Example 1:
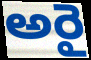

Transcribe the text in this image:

అరై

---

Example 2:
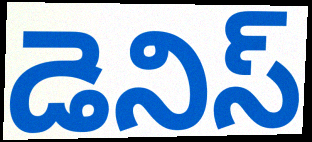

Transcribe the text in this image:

డెనిస్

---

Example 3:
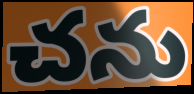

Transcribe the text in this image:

చను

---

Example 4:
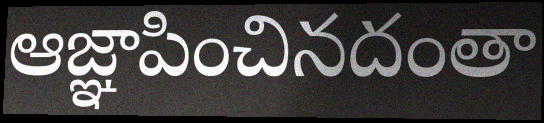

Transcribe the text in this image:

ఆజ్ఞాపించినదంతా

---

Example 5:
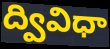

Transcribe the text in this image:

ద్వివిధా